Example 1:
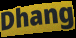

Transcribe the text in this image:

Dhang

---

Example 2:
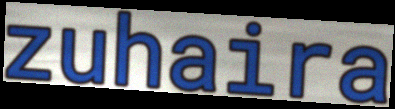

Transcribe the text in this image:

zuhaira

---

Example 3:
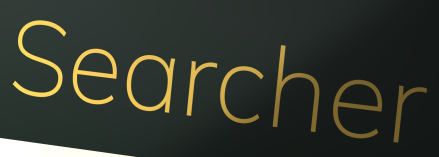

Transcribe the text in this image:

Searcher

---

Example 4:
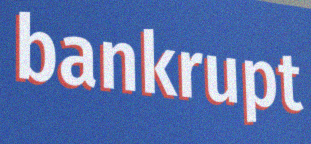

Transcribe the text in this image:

bankrupt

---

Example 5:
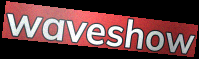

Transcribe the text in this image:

waveshow